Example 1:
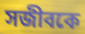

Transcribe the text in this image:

সজীবকে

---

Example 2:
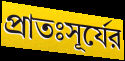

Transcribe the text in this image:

প্রাতঃসূর্যের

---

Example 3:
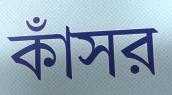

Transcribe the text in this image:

কাঁসর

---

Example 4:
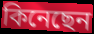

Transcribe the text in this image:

কিনেছেন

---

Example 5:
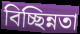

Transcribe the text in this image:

বিচ্ছিন্নতা